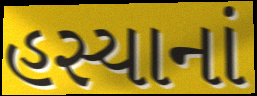
હસ્યાનાં